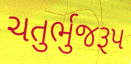
ચતુર્ભુજરૂપ